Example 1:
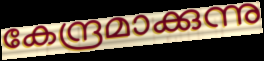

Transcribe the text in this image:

കേന്ദ്രമാക്കുന്നു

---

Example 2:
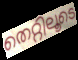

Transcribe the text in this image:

തെറ്റിലൂടെ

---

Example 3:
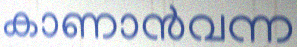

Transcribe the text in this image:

കാണാൻവന്ന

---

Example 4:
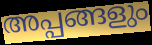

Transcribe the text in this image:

അപ്പങ്ങളും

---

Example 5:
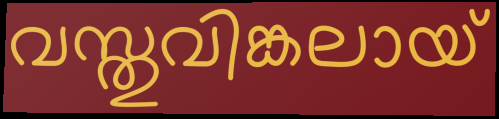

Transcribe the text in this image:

വസ്തുവിങ്കലായ്